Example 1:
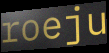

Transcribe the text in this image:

roeju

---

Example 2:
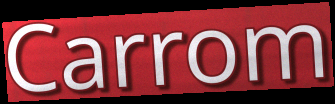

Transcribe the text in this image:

Carrom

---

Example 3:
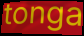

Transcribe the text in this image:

tonga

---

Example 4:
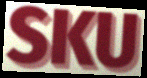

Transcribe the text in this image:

SKU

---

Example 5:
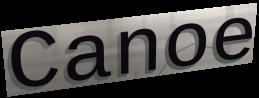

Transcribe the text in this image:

Canoe